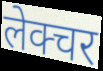
लेक्चर